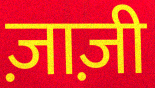
ज़ाज़ी